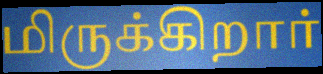
மிருக்கிறார்